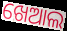
ଖେଆଲ